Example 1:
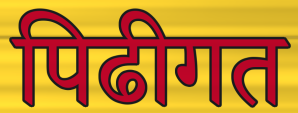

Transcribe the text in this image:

पिढीगत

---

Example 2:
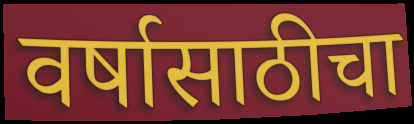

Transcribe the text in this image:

वर्षासाठीचा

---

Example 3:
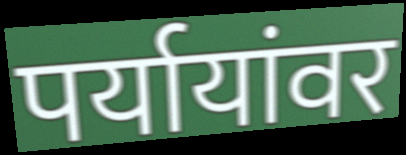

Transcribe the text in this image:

पर्यायांवर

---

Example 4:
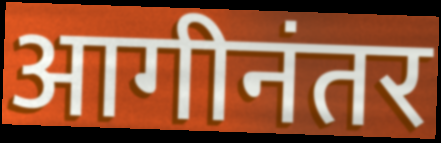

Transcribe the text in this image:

आगीनंतर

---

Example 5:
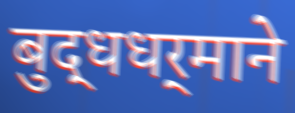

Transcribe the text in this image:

बुद्धधर्माने